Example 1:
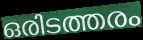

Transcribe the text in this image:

ഒരിടത്തരം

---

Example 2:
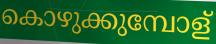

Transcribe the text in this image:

കൊഴുക്കുമ്പോള്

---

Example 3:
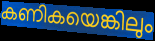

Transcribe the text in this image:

കണികയെങ്കിലും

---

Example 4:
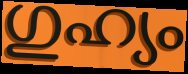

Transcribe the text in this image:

ഗുഹ്യം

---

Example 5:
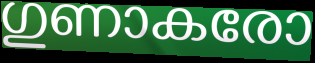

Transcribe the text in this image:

ഗുണാകരോ